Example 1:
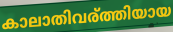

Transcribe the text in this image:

കാലാതിവര്ത്തിയായ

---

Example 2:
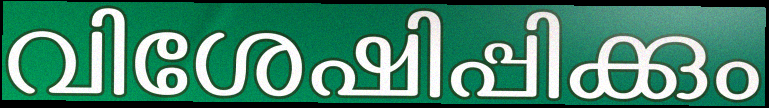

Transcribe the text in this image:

വിശേഷിപ്പിക്കും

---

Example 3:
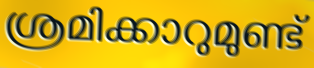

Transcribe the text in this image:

ശ്രമിക്കാറുമുണ്ട്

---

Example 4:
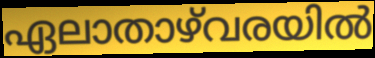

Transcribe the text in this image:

ഏലാതാഴ്‌വരയിൽ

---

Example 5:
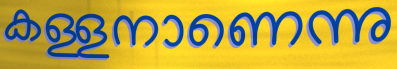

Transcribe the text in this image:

കള്ളനാണെന്നു